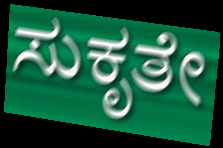
ಸುಕೃತೇ